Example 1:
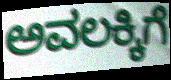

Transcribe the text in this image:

ಅವಲಕ್ಕಿಗೆ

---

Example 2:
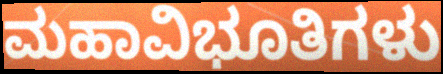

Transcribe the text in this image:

ಮಹಾವಿಭೂತಿಗಳು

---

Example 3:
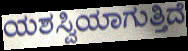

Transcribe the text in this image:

ಯಶಸ್ವಿಯಾಗುತ್ತಿದೆ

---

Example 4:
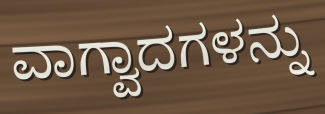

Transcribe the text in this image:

ವಾಗ್ವಾದಗಳನ್ನು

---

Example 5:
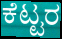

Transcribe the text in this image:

ಕೆಟ್ಟರ